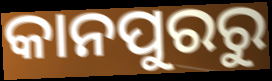
କାନପୁରରୁ